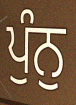
ਪੁੰਨੁ